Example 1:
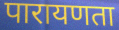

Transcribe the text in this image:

पारायणता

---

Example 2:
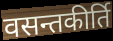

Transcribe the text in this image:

वसन्तकीर्ति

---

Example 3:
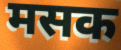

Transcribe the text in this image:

मसक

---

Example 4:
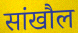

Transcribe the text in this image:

सांखौल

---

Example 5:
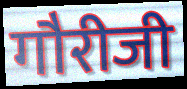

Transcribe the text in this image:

गौरीजी